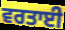
ਵਰਤਾਈ